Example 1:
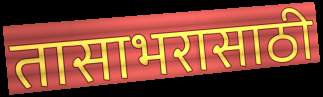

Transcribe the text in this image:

तासाभरासाठी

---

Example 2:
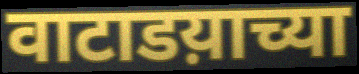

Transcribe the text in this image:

वाटाडय़ाच्या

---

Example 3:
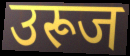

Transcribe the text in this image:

उरूज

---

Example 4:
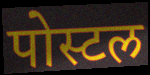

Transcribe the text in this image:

पोस्टल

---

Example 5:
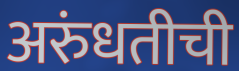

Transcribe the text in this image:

अरुंधतीची